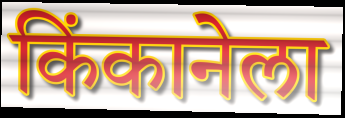
किंकानेला